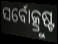
ସର୍ବୋତ୍କ୍ରୁଷ୍ଟ